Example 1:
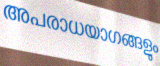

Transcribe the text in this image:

അപരാധയാഗങ്ങളും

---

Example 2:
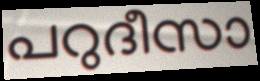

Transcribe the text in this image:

പറുദീസാ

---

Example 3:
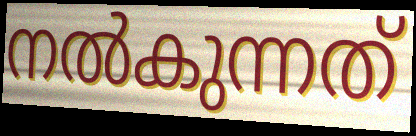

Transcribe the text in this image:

നൽകുന്നത്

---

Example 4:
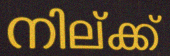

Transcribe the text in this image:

നില്ക്ക്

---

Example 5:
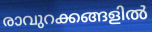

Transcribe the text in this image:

രാവുറക്കങ്ങളിൽ